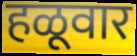
हळूवार